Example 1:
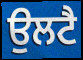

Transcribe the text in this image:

ਉਲਟੈ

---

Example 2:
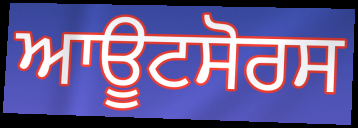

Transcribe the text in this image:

ਆਊਟਸੋਰਸ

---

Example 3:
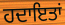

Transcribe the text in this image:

ਹਦਾਇਤਾਂ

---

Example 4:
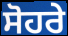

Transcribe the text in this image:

ਸੋਹਰੇ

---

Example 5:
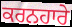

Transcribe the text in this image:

ਕਰਨਹਾਰੇ